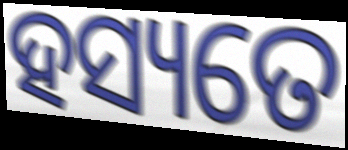
ହସ୍ୟତେ